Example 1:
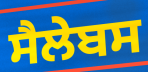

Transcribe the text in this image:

ਸੈਲੇਬਸ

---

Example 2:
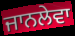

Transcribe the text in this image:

ਜਾਨਲੇਵਾ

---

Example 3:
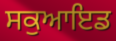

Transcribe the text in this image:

ਸਕੁਆਇਡ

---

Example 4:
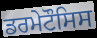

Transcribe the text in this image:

ਡਰਮੇਟੌਸਿਸ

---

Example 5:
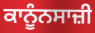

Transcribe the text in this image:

ਕਾਨੂੰਨਸਾਜ਼ੀ